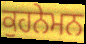
ਕੁਹਨੇਮਨ